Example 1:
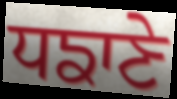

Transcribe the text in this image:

ਧਙਾਣੇ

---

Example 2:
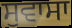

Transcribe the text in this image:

ਸੁਵਾਸਾ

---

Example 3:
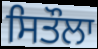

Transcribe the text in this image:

ਸਿਤੌਲਾ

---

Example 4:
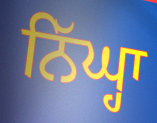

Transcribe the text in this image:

ਨਿੱਘ੍ਹਾ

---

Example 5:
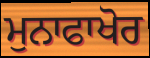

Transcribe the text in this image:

ਮੁਨਾਫਾਖੋਰ